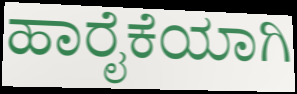
ಹಾರೈಕೆಯಾಗಿ